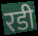
रडी